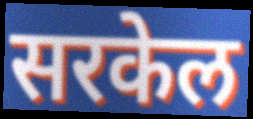
सरकेल